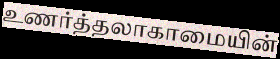
உணர்த்தலாகாமையின்